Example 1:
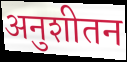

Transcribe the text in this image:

अनुशीतन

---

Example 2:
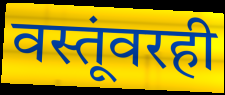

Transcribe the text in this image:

वस्तूंवरही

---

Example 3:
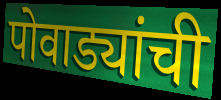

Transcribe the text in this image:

पोवाड्यांची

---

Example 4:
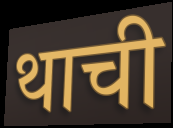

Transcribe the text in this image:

थाची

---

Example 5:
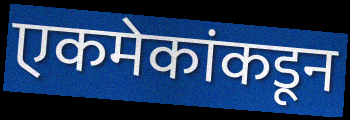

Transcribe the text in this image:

एकमेकांकडून